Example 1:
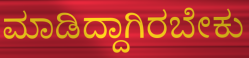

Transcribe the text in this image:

ಮಾಡಿದ್ದಾಗಿರಬೇಕು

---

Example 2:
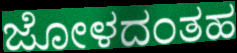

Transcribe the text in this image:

ಜೋಳದಂತಹ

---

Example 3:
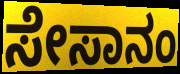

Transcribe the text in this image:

ಸೇಸಾನಂ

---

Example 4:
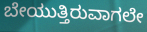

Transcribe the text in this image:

ಬೇಯುತ್ತಿರುವಾಗಲೇ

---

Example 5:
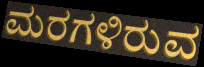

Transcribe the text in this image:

ಮರಗಳಿರುವ